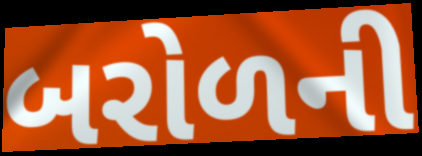
બરોળની